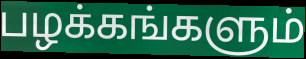
பழக்கங்களும்